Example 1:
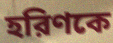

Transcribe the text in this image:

হরিণকে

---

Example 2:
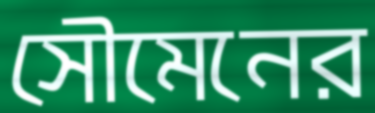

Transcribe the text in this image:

সৌমেনের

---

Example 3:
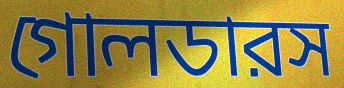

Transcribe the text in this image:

গোলডারস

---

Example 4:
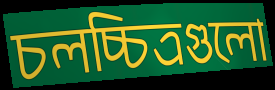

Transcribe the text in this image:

চলচ্চিত্রগুলো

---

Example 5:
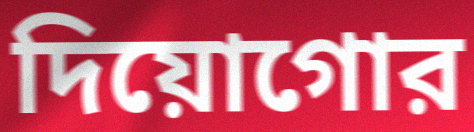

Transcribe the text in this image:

দিয়োগোর